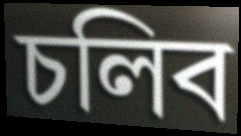
চলিব